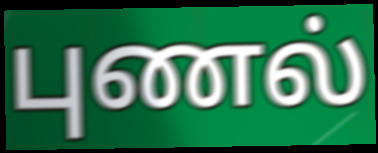
புணல்